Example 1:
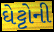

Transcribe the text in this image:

ઘેટ્ટોની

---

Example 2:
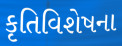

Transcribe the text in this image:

કૃતિવિશેષના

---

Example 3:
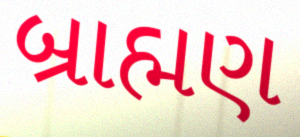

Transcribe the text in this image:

બ્રાહ્મણ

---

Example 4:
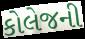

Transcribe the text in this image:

કોલેજની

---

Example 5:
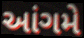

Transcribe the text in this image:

આંગમે